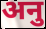
अनु